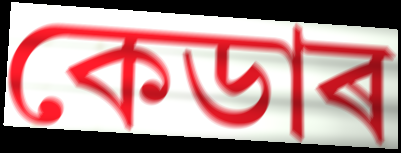
কেডাৰ